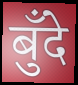
बुँदे